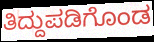
ತಿದ್ದುಪಡಿಗೊಂಡ